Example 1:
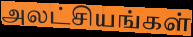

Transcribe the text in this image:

அலட்சியங்கள்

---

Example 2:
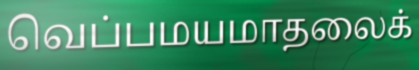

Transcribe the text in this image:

வெப்பமயமாதலைக்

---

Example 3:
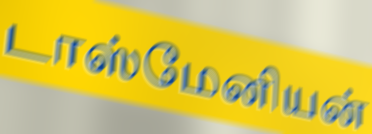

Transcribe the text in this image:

டாஸ்மேனியன்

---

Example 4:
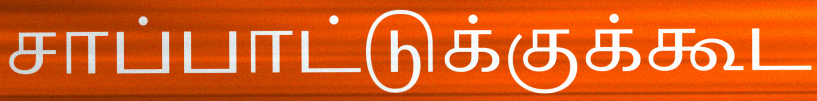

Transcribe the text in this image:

சாப்பாட்டுக்குக்கூட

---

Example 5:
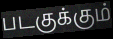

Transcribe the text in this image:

படகுக்கும்